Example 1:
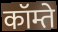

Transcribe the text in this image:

कॉम्ते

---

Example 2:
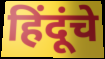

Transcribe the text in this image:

हिंदूंचे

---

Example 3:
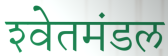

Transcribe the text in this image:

श्वेतमंडल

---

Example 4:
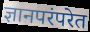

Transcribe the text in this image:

ज्ञानपरंपरेत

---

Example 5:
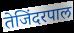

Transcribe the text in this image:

तेजिंदरपाल